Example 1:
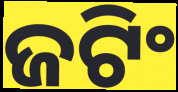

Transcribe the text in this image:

ଜଟିଂ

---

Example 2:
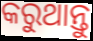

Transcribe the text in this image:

କରୁଥାନ୍ତୁ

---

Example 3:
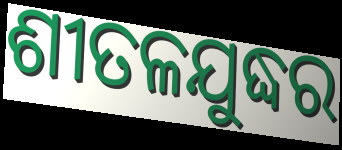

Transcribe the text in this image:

ଶୀତଳଯୁଦ୍ଧର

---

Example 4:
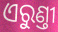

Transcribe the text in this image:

ଏରୁଣ୍ତୀ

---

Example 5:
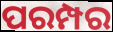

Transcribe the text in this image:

ପରମ୍ପର